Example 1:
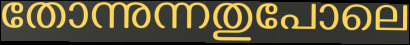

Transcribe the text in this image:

തോന്നുന്നതുപോലെ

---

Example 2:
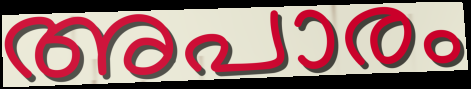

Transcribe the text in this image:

അപാരം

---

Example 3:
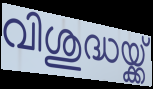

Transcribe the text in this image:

വിശുദ്ധയ്ക്ക്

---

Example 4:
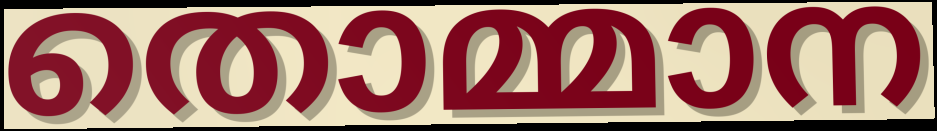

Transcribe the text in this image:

തൊമ്മാന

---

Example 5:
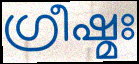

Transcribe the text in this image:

ഗ്രീഷ്മഃ